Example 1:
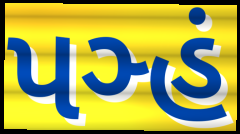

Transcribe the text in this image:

પઞ્હં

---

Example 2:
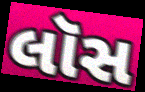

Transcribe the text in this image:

લૉસ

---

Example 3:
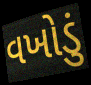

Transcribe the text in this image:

વખોડું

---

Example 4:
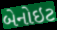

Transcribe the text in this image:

બેનોઇટ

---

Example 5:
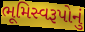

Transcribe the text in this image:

ભૂમિસ્વરૂપોનું